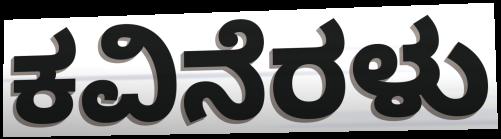
ಕವಿನೆರಳು